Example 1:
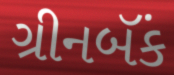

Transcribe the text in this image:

ગ્રીનબૅંક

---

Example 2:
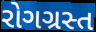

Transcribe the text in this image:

રોગગ્રસ્ત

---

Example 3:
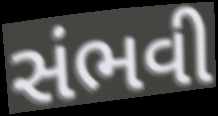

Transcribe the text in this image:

સંભવી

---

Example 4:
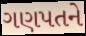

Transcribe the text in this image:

ગણપતને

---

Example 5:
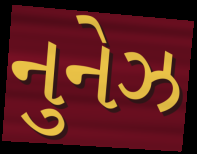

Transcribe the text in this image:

નુનેઝ